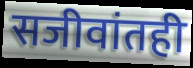
सजीवांतही